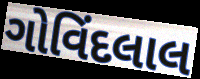
ગોવિંદલાલ